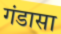
गंडासा